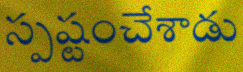
స్పష్టంచేశాడు